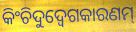
କିଂଚିଦୁଦ୍ବେଗକାରଣମ୍